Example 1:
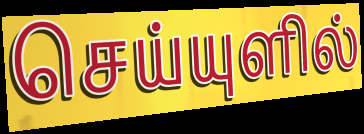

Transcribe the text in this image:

செய்யுளில்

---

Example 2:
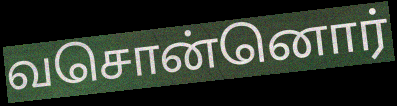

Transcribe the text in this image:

வசொன்னொர்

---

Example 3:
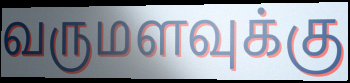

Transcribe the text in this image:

வருமளவுக்கு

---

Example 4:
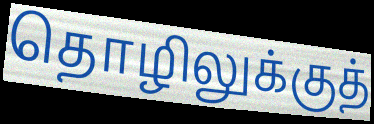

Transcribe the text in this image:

தொழிலுக்குத்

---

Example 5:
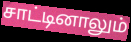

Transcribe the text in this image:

சாட்டினாலும்